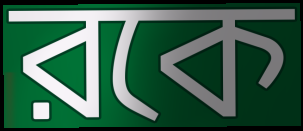
রকে